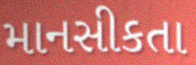
માનસીકતા